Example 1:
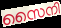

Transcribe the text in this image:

സൈനി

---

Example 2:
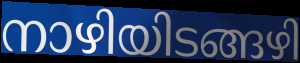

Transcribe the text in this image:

നാഴിയിടങ്ങഴി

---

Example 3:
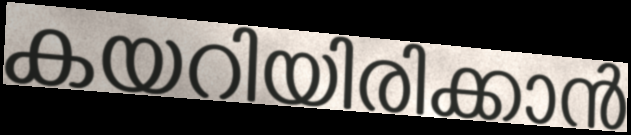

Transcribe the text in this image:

കയറിയിരിക്കാൻ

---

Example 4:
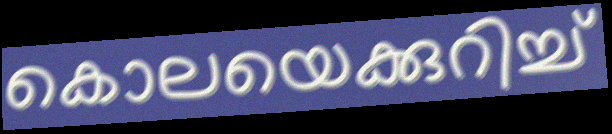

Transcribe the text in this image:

കൊലയെക്കുറിച്ച്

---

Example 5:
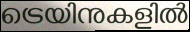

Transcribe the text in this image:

ട്രെയിനുകളിൽ